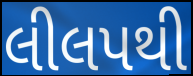
લીલપથી